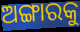
ଅଙ୍ଗାରକୁ